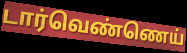
டார்வெண்ணெய்